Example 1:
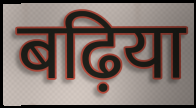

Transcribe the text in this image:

बढ़िया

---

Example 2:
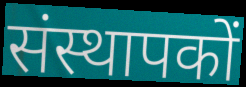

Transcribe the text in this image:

संस्थापकों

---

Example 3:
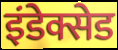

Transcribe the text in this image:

इंडेक्सेड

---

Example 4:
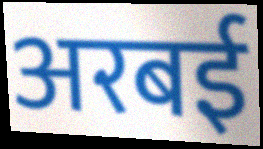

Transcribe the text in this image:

अरबई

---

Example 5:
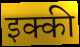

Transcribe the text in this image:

इक्की